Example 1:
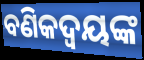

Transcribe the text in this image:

ବଣିକଦ୍ଵୟଙ୍କ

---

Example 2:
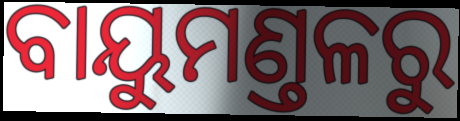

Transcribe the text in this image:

ବାୟୁମଣ୍ତଳରୁ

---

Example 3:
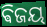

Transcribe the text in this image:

ଵିଜୟ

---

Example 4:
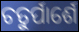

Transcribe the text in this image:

ଚତୁର୍ପାର୍ଶେ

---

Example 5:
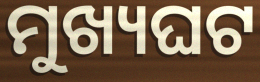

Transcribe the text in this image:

ମୁଖ୍ୟଘଟ